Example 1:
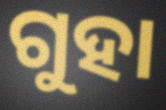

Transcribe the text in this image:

ଗୁହା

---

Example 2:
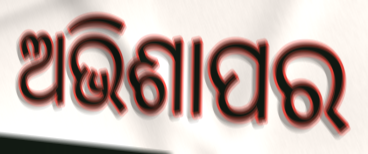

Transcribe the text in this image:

ଅଭିଶାପର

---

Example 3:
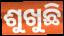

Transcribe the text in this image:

ଶୁଖୁଛି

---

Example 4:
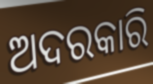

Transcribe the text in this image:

ଅଦରକାରି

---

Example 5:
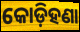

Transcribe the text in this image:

କୋଡ଼ିହଣା